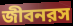
জীবনরস